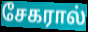
சேகரால்